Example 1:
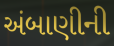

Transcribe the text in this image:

અંબાણીની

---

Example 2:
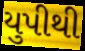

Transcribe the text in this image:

યુપીથી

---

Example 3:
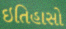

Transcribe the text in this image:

ઇતિહાસો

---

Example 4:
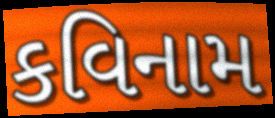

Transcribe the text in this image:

કવિનામ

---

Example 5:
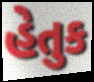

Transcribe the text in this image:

હેતુક